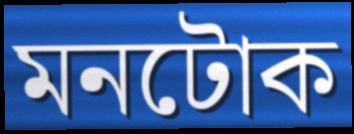
মনটোক